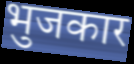
भुजकार